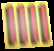
llll